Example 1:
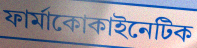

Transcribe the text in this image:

ফার্মাকোকাইনেটিক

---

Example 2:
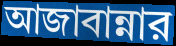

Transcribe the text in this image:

আজাবান্নার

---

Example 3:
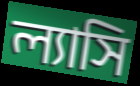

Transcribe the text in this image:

ল্যাসি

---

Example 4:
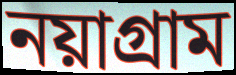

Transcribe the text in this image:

নয়াগ্রাম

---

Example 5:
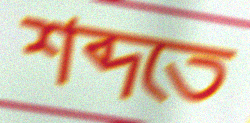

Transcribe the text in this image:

শব্দতে